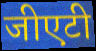
जीएटी